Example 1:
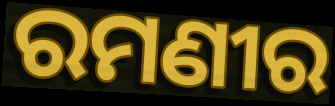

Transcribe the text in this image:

ରମଣୀର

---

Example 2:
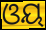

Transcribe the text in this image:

ଓୟ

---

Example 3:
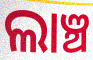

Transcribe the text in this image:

ଲାଞ୍ଚ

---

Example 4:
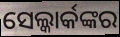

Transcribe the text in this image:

ସେଲ୍କାର୍କଙ୍କର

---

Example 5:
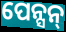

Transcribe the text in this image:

ପେନ୍ସନ୍